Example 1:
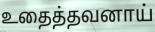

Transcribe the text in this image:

உதைத்தவனாய்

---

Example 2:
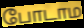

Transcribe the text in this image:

போடாம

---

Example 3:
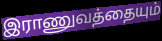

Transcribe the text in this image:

இராணுவத்தையும்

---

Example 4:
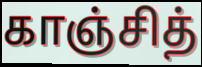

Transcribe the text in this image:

காஞ்சித்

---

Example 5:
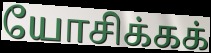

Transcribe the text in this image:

யோசிக்கக்